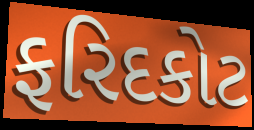
ફરિદકોટ